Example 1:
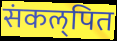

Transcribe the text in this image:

संकल्पित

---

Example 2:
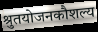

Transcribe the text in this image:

श्रुतयोजनकौशल्य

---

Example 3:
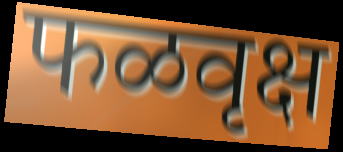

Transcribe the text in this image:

फळवृक्ष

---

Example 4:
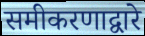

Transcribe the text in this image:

समीकरणाद्वारे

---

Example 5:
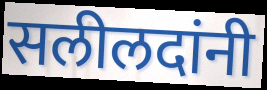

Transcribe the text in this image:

सलीलदांनी